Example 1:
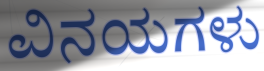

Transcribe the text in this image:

ವಿನಯಗಳು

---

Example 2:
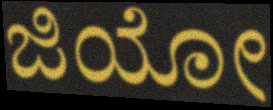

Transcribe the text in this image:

ಜಿಯೋ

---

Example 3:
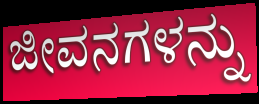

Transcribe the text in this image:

ಜೀವನಗಳನ್ನು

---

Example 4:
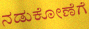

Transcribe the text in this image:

ನಡುಕೋಣೆಗೆ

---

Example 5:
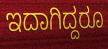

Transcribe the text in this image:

ಇದಾಗಿದ್ದರೂ